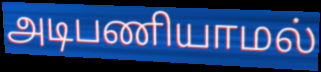
அடிபணியாமல்